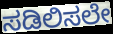
ಸಡಿಲಿಸಲೇ